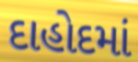
દાહોદમાં